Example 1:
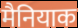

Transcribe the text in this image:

मैनियाक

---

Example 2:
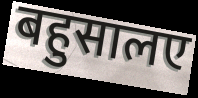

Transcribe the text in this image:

बहुसालए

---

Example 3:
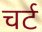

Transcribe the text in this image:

चर्ट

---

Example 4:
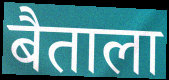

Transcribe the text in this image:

बैताला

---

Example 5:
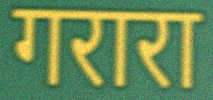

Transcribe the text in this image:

गरारा